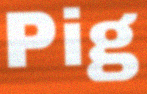
Pig